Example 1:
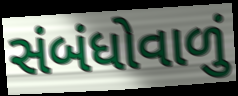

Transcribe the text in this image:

સંબંધોવાળું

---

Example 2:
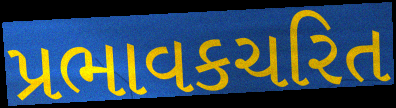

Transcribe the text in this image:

પ્રભાવકચરિત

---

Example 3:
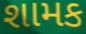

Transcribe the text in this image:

શામક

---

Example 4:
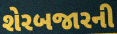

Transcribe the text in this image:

શેરબજારની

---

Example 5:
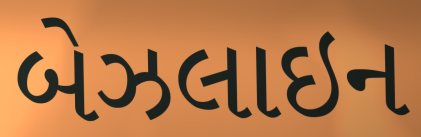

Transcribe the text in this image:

બેઝલાઇન